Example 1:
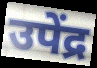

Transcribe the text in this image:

उपेंद्र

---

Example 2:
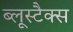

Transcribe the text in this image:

ब्लूस्टैक्स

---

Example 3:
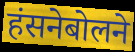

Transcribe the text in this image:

हंसनेबोलने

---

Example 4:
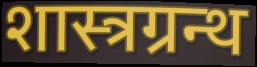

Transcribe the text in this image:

शास्त्रग्रन्थ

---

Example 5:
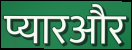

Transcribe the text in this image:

प्यारऔर